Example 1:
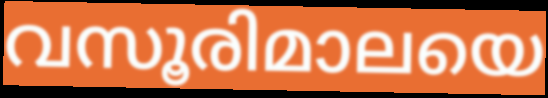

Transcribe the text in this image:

വസൂരിമാലയെ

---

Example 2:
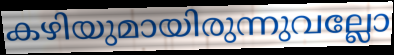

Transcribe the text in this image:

കഴിയുമായിരുന്നുവല്ലോ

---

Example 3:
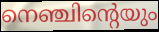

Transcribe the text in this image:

നെഞ്ചിന്റെയും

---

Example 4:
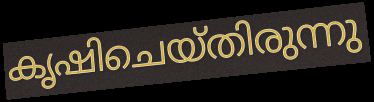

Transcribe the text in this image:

കൃഷിചെയ്തിരുന്നു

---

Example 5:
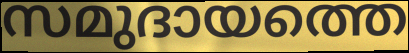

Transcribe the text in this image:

സമുദായത്തെ